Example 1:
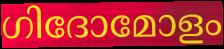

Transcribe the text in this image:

ഗിദോമോളം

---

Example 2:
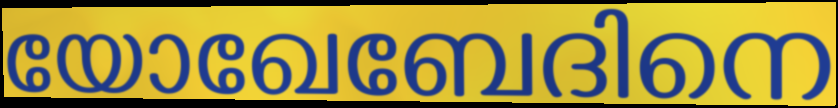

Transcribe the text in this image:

യോഖേബേദിനെ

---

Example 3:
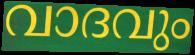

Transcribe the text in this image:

വാദവും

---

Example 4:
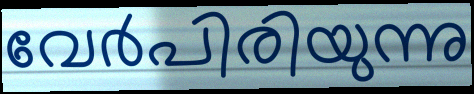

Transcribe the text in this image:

വേർപിരിയുന്നു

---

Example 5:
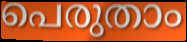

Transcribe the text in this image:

പെരുതാം